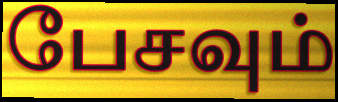
பேசவும்